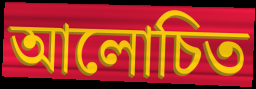
আলোচিত